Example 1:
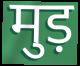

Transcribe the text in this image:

मुड़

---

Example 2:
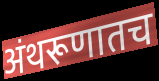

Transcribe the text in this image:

अंथरूणातच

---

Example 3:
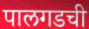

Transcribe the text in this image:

पालगडची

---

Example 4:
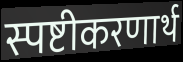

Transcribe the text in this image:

स्पष्टीकरणार्थ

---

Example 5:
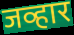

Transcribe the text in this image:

जव्हार